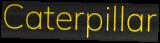
Caterpillar